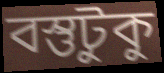
বস্তুটুকু